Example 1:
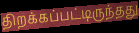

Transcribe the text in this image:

திறக்கப்பட்டிருந்தது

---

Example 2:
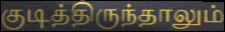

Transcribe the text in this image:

குடித்திருந்தாலும்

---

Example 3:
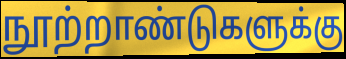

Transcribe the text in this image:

நூற்றாண்டுகளுக்கு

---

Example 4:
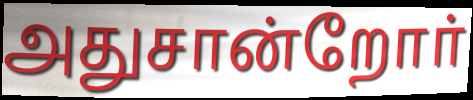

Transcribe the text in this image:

அதுசான்றோர்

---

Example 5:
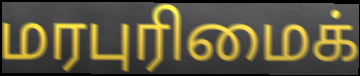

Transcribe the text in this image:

மரபுரிமைக்